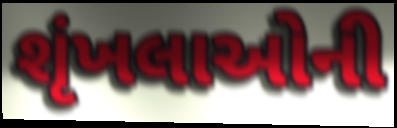
શૃંખલાઓની